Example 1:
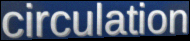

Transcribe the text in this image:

circulation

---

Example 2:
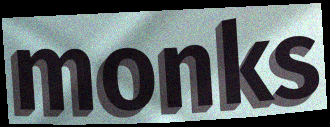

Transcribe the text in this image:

monks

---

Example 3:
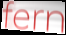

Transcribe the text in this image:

fern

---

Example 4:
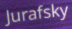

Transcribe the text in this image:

Jurafsky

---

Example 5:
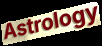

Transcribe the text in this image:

Astrology